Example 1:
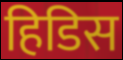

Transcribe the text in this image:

हिडिस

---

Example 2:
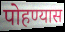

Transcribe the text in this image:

पोहण्यास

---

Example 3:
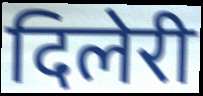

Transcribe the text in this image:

दिलेरी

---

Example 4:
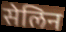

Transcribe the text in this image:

सेलिन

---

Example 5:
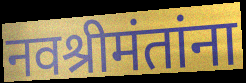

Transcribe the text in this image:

नवश्रीमंतांना